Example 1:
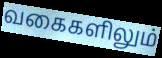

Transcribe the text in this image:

வகைகளிலும்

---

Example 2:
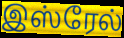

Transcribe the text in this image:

இஸ்ரேல்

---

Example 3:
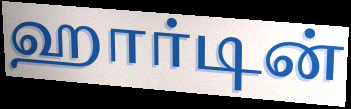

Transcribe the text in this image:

ஹார்டின்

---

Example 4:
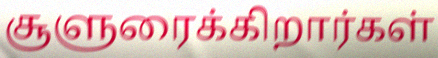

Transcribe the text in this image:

சூளுரைக்கிறார்கள்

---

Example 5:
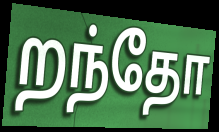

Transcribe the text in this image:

றந்தோ